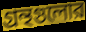
গ্রন্থগুলোর